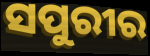
ସପୁରୀର